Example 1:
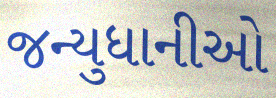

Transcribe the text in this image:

જન્યુધાનીઓ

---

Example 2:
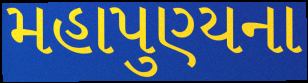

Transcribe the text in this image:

મહાપુણ્યના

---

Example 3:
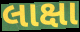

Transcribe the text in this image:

લાક્ષા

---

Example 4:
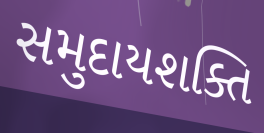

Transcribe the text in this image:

સમુદાયશક્તિ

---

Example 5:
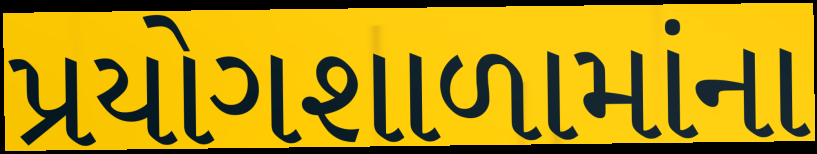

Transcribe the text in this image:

પ્રયોગશાળામાંના